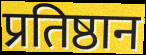
प्रतिष्ठान